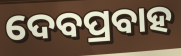
ଦେବପ୍ରବାହ